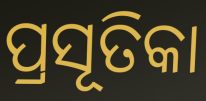
ପ୍ରସୂତିକା